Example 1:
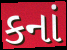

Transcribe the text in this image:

કનાં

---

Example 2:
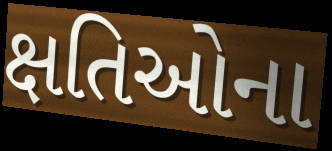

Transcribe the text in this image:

ક્ષતિઓના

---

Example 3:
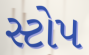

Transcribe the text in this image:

સ્ટોપ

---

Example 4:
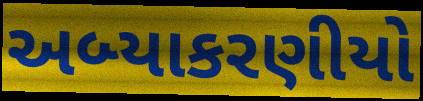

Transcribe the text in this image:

અબ્યાકરણીયો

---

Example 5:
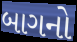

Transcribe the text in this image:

બાગનો